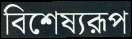
বিশেষ্যরূপ